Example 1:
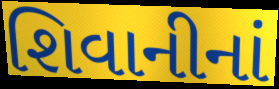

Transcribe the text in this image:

શિવાનીનાં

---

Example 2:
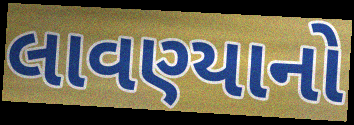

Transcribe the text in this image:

લાવણ્યાનો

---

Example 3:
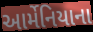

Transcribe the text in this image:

આર્મેનિયાના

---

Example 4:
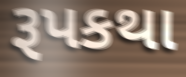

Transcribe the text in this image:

રૂપકથા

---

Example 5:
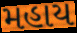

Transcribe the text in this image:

મહાય